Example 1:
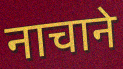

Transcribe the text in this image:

नाचाने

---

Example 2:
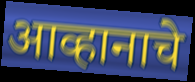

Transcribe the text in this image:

आव्हानाचे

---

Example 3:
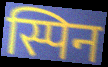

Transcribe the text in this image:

स्पिन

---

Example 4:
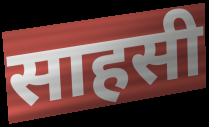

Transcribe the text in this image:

साहसी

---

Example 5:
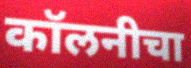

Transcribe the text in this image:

कॉलनीचा